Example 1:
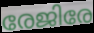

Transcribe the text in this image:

രേജിരേ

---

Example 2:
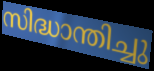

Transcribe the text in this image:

സിദ്ധാന്തിച്ചു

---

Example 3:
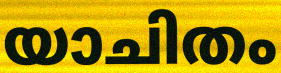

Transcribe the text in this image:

യാചിതം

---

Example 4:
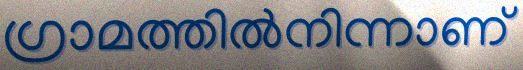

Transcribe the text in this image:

ഗ്രാമത്തിൽനിന്നാണ്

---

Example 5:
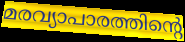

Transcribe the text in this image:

മരവ്യാപാരത്തിന്റെ